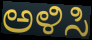
ಅಳಿಸಿ